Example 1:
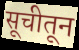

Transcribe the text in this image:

सूचीतून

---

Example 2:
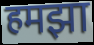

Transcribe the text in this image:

हमझा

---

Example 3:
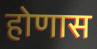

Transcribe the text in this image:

होणास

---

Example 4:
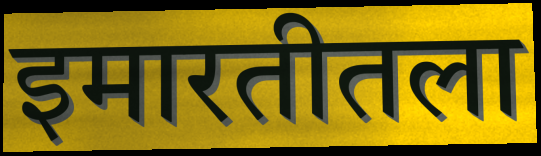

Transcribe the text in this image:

इमारतीतला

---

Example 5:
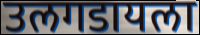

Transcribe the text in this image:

उलगडायला